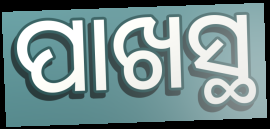
ପାଖସ୍ଥ